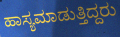
ಹಾಸ್ಯಮಾಡುತ್ತಿದ್ದರು